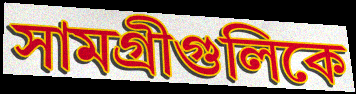
সামগ্রীগুলিকে